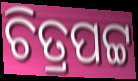
ଚିତ୍ରପଟ୍ଟ